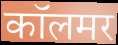
कॉलमर